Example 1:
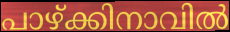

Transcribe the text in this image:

പാഴ്ക്കിനാവിൽ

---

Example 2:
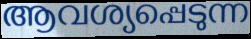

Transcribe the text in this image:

ആവശ്യപ്പെടുന്ന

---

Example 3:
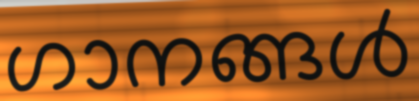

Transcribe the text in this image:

ഗാനങ്ങൾ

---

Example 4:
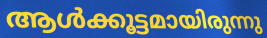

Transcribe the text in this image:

ആൾക്കൂട്ടമായിരുന്നു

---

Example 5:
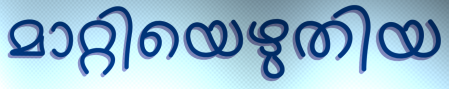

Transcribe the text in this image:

മാറ്റിയെഴുതിയ